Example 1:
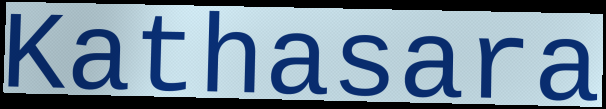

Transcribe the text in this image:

Kathasara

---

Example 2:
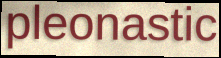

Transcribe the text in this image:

pleonastic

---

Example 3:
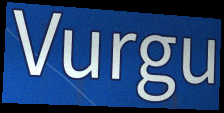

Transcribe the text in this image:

Vurgu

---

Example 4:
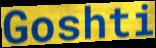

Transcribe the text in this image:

Goshti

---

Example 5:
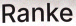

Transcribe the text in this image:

Ranke